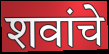
शवांचे